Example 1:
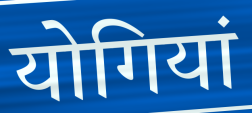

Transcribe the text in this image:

योगियां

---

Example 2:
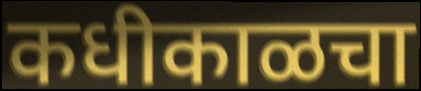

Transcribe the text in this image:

कधीकाळचा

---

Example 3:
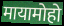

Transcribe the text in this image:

मायामोहो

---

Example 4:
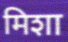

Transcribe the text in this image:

मिशा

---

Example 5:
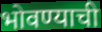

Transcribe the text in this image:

भोवण्याची